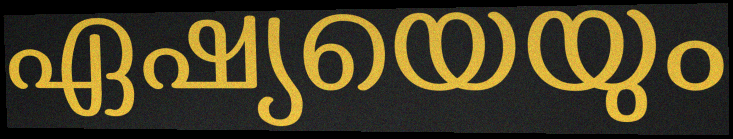
ഏഷ്യയെയും